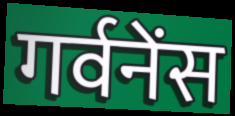
गर्वनेंस